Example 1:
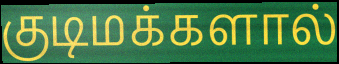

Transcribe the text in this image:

குடிமக்களால்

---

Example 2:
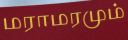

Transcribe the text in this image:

மராமரமும்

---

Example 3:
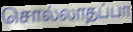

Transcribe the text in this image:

சொல்லாதப்பா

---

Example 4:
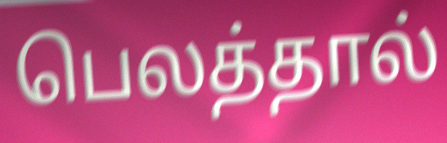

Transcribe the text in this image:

பெலத்தால்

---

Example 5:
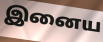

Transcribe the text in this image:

இனைய